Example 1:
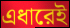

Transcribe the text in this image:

এধারেই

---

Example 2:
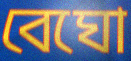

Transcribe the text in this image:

বেঘো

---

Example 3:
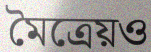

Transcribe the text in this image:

মৈত্রেয়ও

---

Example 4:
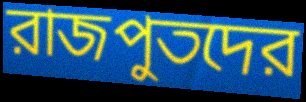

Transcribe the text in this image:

রাজপুতদের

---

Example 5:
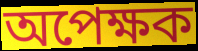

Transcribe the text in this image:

অপেক্ষক